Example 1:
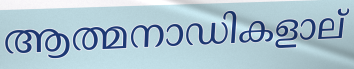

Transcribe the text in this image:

ആത്മനാഡികളാല്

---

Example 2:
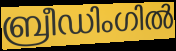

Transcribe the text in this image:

ബ്രീഡിംഗിൽ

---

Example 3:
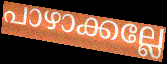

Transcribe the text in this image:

പാഴാക്കല്ലേ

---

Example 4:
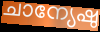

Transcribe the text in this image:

ചാന്യേഷു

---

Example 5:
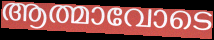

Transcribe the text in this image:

ആത്മാവോടെ